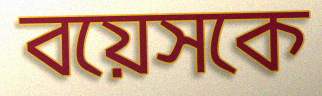
বয়েসকে